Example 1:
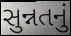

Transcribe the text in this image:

સુન્નતનું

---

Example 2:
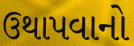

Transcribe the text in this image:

ઉથાપવાનો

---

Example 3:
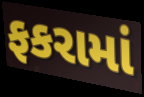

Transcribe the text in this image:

ફકરામાં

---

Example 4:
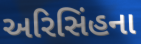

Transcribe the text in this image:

અરિસિંહના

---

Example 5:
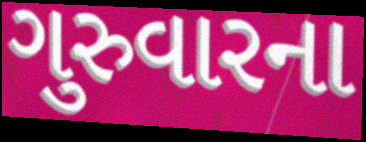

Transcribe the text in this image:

ગુરુવારના